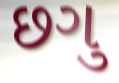
છગુ